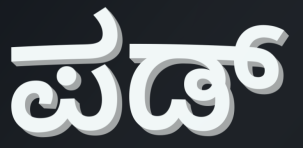
ಪಡ್